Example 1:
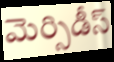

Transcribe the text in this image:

మెర్సిడీస్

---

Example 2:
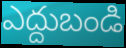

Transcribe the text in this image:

ఎద్దుబండి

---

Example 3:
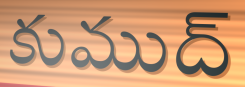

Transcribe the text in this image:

కుముద్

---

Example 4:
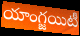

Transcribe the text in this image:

యాంగ్జయిటీ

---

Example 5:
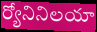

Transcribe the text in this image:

ర్యోనినిలయా